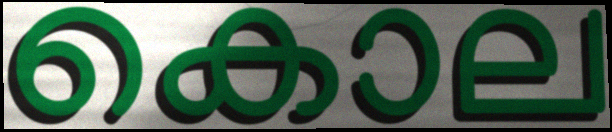
കൊല